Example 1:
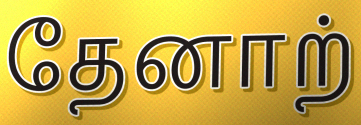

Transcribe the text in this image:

தேனாற்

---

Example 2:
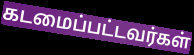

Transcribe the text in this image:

கடமைப்பட்டவர்கள்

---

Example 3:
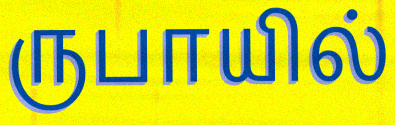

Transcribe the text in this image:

ருபாயில்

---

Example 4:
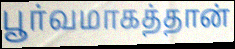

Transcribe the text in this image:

பூர்வமாகத்தான்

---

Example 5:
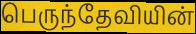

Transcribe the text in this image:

பெருந்தேவியின்